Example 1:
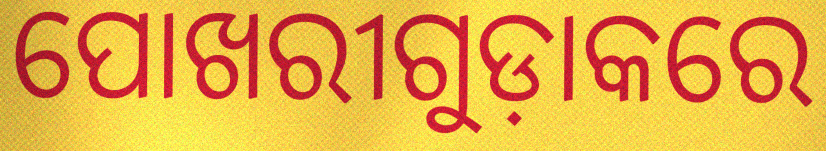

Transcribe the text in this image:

ପୋଖରୀଗୁଡ଼ାକରେ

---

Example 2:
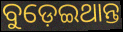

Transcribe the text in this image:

ବୁଡ଼େଇଥାନ୍ତ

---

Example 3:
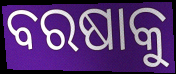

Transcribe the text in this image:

ବରଷାକୁ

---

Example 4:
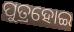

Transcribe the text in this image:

ପୁତ୍ରହୋଇ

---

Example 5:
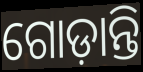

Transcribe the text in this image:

ଗୋଡ଼ାନ୍ତି